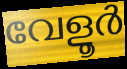
വേളൂർ